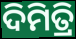
ଦିମିତ୍ରି